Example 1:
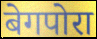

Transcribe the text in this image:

बेगपोरा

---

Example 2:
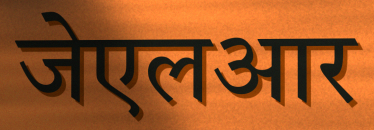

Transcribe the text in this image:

जेएलआर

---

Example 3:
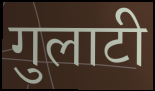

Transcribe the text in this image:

गुलाटी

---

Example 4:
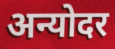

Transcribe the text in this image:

अन्योदर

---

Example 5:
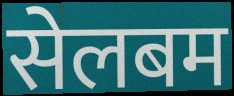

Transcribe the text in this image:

सेलबम